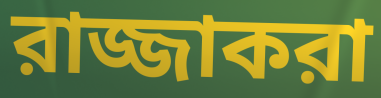
রাজ্জাকরা